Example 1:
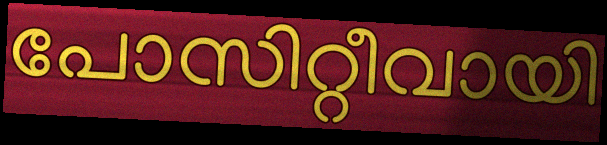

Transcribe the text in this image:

പോസിറ്റീവായി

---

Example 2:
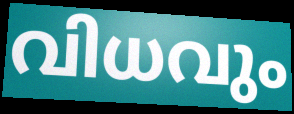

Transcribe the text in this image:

വിധവും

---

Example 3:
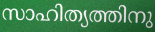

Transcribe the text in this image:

സാഹിത്യത്തിനു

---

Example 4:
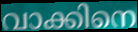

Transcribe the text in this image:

വാക്കിനെ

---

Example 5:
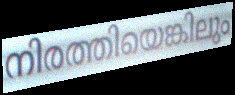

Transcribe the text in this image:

നിരത്തിയെങ്കിലും